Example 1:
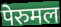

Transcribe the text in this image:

पेरुमल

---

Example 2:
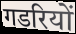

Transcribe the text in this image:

गडरियों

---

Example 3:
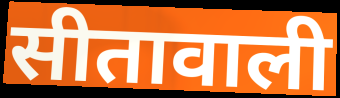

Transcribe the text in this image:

सीतावाली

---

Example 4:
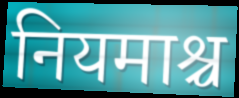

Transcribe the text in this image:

नियमाश्च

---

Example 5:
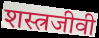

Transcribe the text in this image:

शस्त्रजीवी